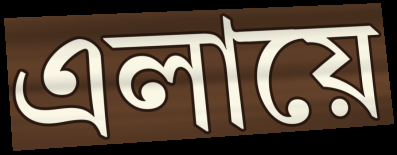
এলায়ে